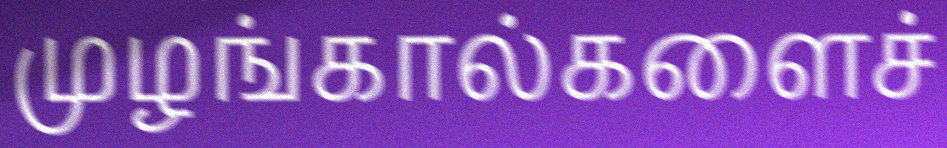
முழங்கால்களைச்